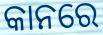
କାନରେ